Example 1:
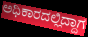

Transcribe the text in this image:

ಅಧಿಕಾರದಲ್ಲಿದ್ದಾಗ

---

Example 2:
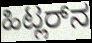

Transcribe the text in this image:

ಹಿಟ್ಲರ್‌ನ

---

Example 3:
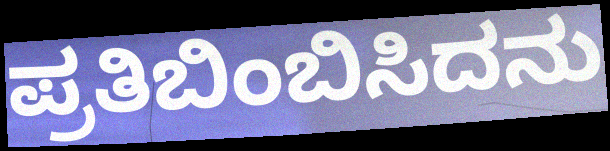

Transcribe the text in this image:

ಪ್ರತಿಬಿಂಬಿಸಿದನು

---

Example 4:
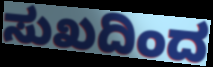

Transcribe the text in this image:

ಸುಖದಿಂದ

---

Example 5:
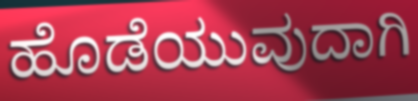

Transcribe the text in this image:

ಹೊಡೆಯುವುದಾಗಿ